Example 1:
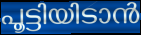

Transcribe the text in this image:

പൂട്ടിയിടാൻ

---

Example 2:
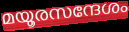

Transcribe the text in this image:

മയൂരസന്ദേശം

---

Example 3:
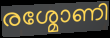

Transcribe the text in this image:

രശ്മോണി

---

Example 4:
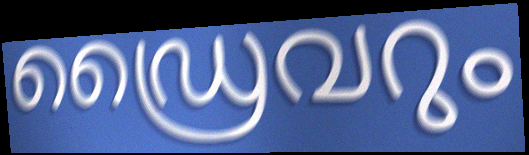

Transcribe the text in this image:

ഡ്രൈവറും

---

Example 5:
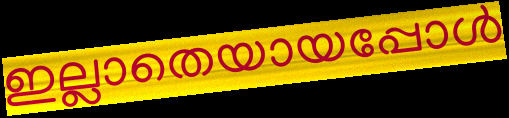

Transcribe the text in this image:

ഇല്ലാതെയായപ്പോൾ